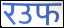
रउफ